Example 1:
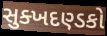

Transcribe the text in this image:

સુક્ખદણ્ડકો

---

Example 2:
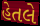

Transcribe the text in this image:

હેતલે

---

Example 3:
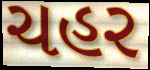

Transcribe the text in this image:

ચહર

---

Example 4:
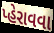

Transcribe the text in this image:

પ્હેરાવવા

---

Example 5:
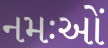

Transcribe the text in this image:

નમઃઓં